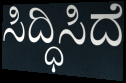
ಸಿದ್ಧಿಸಿದೆ